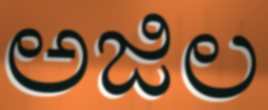
ಅಜಿಲ